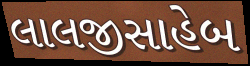
લાલજીસાહેબ